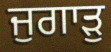
ਜੁਗਾੜੁ